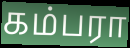
கம்பரா